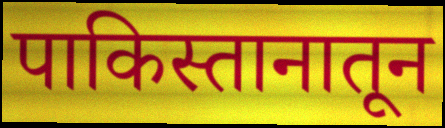
पाकिस्तानातून